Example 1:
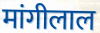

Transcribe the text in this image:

मांगीलाल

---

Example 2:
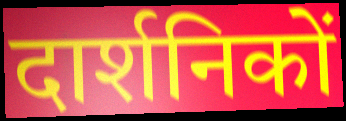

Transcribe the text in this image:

दार्शनिकों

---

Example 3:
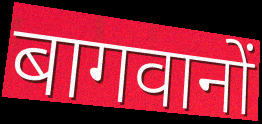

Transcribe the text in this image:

बागवानों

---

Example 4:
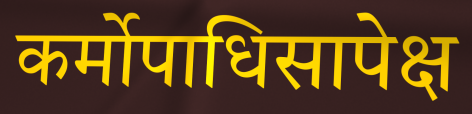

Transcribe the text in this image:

कर्मोपाधिसापेक्ष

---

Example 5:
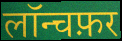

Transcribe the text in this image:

लॉन्चफ़र